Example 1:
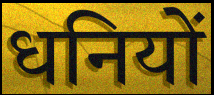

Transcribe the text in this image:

धनियों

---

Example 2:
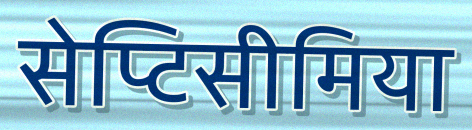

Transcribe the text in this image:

सेप्टिसीमिया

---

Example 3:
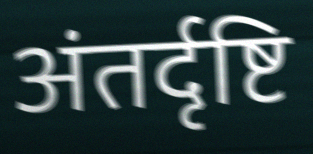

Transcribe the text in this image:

अंतर्दृष्टि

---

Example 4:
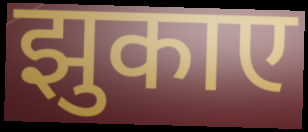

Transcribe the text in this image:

झुकाए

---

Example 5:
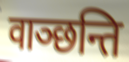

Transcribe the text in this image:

वाञ्छन्ति